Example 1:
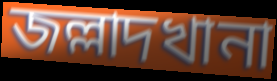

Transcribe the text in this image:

জল্লাদখানা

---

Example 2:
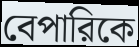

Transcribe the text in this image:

বেপারিকে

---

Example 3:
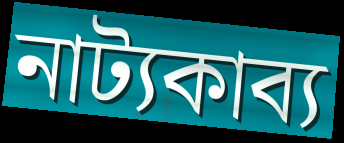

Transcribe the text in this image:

নাট্যকাব্য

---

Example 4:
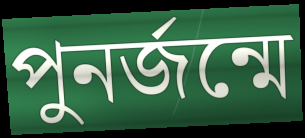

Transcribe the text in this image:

পুনর্জন্মে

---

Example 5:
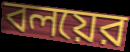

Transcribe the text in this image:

বলয়ের